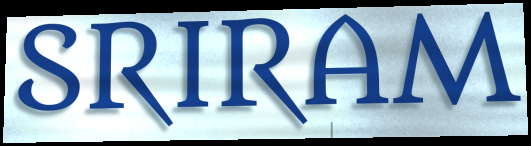
SRIRAM